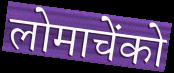
लोमाचेंको